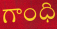
గాంధి